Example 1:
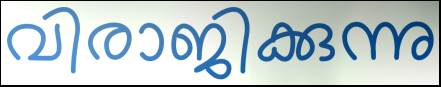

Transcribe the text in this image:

വിരാജിക്കുന്നു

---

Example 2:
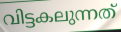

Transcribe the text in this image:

വിട്ടകലുന്നത്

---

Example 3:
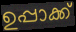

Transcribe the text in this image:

ഉപ്പാക്ക്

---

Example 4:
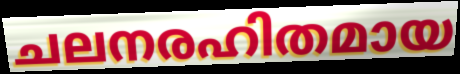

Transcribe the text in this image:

ചലനരഹിതമായ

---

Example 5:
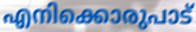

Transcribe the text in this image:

എനിക്കൊരുപാട്